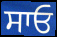
ਸਾਓ